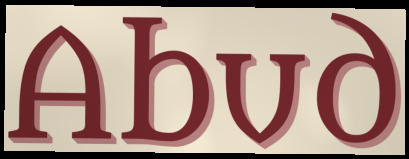
Abud